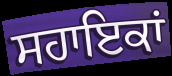
ਸਹਾਇਕਾਂ